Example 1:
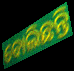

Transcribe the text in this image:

ବୋଲିଛନ୍ତି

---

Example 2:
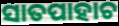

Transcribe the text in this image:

ସାତପାହାଚ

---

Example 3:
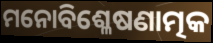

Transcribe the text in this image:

ମନୋବିଶ୍ଳେଷଣାତ୍ମକ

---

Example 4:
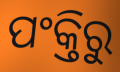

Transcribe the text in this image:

ପଂକ୍ତିରୁ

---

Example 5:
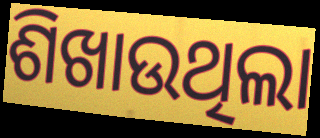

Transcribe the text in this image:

ଶିଖାଉଥିଲା